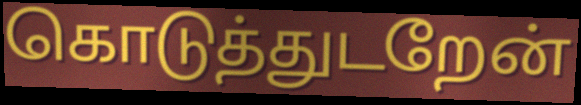
கொடுத்துடறேன்